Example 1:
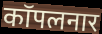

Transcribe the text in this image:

कॉपलनार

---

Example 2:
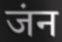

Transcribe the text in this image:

जंन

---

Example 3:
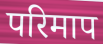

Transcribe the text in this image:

परिमाप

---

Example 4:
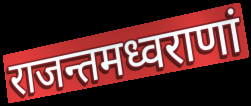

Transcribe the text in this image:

राजन्तमध्वराणां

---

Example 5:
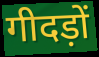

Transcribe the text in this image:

गीदड़ों